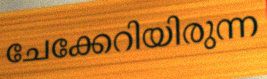
ചേക്കേറിയിരുന്ന